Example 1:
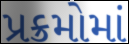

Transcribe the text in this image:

પ્રક્રમોમાં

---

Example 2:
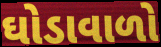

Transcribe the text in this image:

ઘોડાવાળો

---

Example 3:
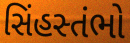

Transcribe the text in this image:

સિંહસ્તંભો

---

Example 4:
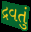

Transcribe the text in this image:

દ્રવતું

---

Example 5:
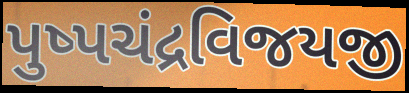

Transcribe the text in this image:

પુષ્પચંદ્રવિજયજી